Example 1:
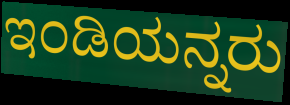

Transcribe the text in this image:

ಇಂಡಿಯನ್ನರು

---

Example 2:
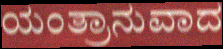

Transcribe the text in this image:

ಯಂತ್ರಾನುವಾದ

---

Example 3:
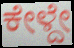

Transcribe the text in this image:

ಕೇಳ್ದೇ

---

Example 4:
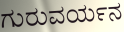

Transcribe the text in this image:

ಗುರುವರ್ಯನ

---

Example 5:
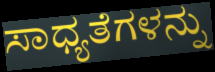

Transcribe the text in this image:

ಸಾಧ್ಯತೆಗಳನ್ನು